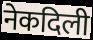
नेकदिली